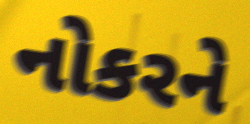
નોકરને